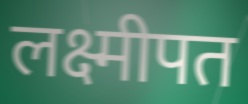
लक्ष्मीपत